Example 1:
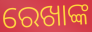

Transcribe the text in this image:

ରେଖାଙ୍କ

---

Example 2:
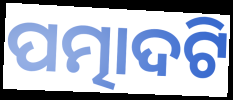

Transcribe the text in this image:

ପତ୍ମାଦଟି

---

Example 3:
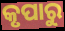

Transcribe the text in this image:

କୃପାରୁ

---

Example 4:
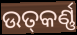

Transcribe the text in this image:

ଉତ୍‍କର୍ଣ୍ଣ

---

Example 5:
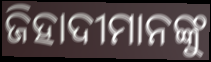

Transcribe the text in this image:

ଜିହାଦୀମାନଙ୍କୁ